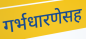
गर्भधारणेसह